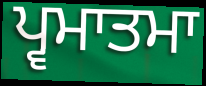
ਪ੍ਵਮਾਤਮਾ